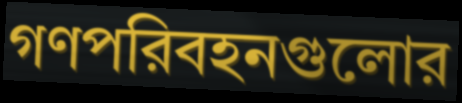
গণপরিবহনগুলোর